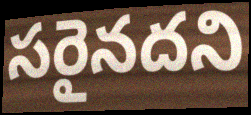
సరైనదని